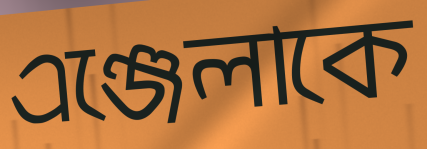
এঞ্জেলাকে